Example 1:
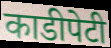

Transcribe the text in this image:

काडीपेटी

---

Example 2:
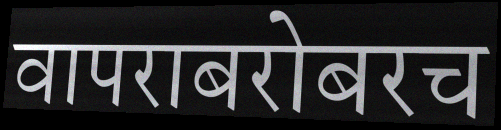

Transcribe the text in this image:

वापराबरोबरच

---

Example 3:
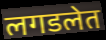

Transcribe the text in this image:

लगडलेत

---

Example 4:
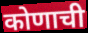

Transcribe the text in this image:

कोणाची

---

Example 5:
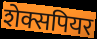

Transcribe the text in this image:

शेक्सपियर